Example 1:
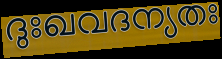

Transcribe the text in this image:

ദുഃഖവദന്യതഃ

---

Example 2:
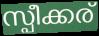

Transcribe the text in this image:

സ്പീക്കര്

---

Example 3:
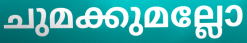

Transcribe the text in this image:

ചുമക്കുമല്ലോ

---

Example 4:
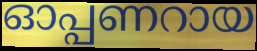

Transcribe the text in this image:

ഓപ്പണറായ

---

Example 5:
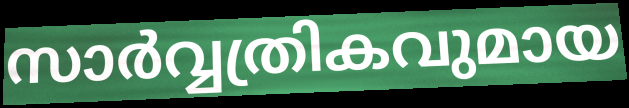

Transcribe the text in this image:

സാർവ്വത്രികവുമായ